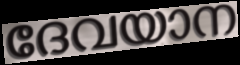
ദേവയാന